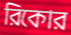
রিকোর